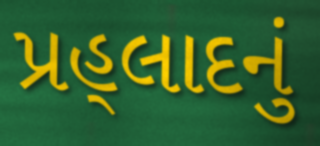
પ્રહ્‌લાદનું